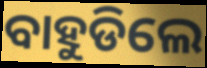
ବାହୁଡିଲେ